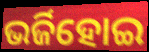
ଭର୍ଜିହୋଇ